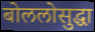
बोललोसुद्धा